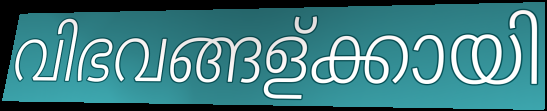
വിഭവങ്ങള്ക്കായി